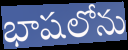
భాషలోను